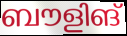
ബൗളിങ്